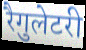
रैगुलेटरी